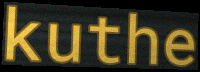
kuthe